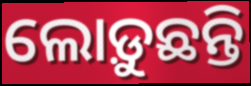
ଲୋଡ଼ୁଛନ୍ତି